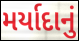
મર્યાદાનું